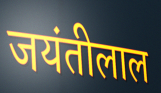
जयंतीलाल